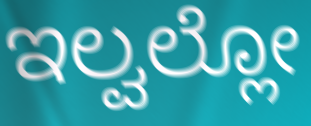
ಇಲ್ವಲ್ಲೋ